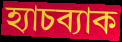
হ্যাচব্যাক